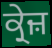
ਕ੍ਰੇਜ਼